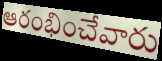
ఆరంభించేవారు